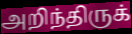
அறிந்திருக்